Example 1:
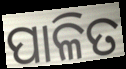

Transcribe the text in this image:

ପାଳିତ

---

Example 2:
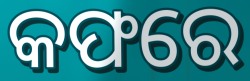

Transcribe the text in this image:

କଫରେ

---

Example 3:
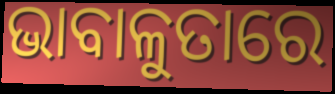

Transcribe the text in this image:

ଭାବାଳୁତାରେ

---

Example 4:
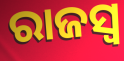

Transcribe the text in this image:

ରାଜସ୍ୱ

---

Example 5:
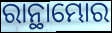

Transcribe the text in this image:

ରାନ୍ଥାମ୍ଭୋର